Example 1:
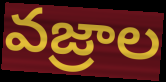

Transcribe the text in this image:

వజ్రాల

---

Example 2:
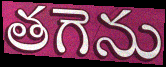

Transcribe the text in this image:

తగెను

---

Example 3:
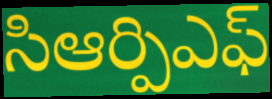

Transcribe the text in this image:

సిఆర్పిఎఫ్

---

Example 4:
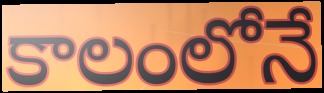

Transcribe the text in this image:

కాలంలోనే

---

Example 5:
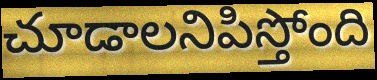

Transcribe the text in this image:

చూడాలనిపిస్తోంది